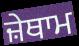
ਜ਼ੇਥਾਮ